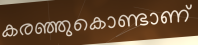
കരഞ്ഞുകൊണ്ടാണ്